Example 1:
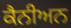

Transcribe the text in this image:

ਕੈਨੀਅਨ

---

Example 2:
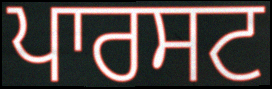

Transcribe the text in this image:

ਪਾਰਸਟ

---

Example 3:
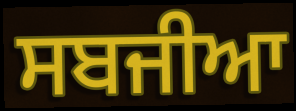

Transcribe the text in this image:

ਸਬਜੀਆ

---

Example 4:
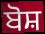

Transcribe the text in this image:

ਬੋਸ਼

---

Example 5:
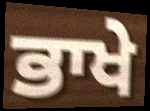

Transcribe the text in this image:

ਭਾਖੇ